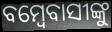
ବମ୍ବେବାସୀଙ୍କୁ